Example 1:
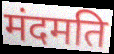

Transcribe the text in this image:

मंदमति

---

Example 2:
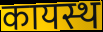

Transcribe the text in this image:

कायस्थ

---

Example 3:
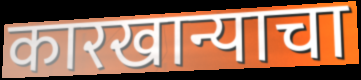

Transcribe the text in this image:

कारखान्याचा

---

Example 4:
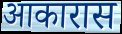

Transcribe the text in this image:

आकारास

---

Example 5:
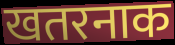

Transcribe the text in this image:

खतरनाक